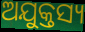
ଅଯୁକ୍ତସ୍ୟ